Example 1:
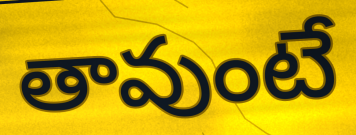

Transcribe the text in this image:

తావుంటే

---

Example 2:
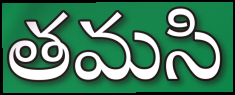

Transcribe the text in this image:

తమసి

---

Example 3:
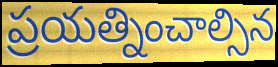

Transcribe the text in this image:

ప్రయత్నించాల్సిన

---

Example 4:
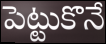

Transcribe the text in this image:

పెట్టుకొనే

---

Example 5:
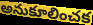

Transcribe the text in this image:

అనుకూలించక